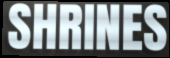
SHRINES